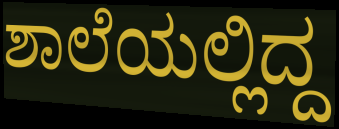
ಶಾಲೆಯಲ್ಲಿದ್ದ